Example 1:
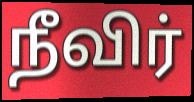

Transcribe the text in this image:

நீவிர்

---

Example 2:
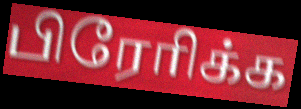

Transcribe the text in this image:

பிரேரிக்க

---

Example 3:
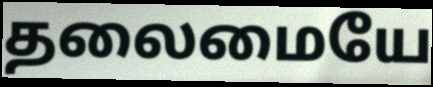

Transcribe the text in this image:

தலைமையே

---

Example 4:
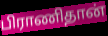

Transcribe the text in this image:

பிராணிதான்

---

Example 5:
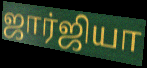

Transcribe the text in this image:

ஜார்ஜியா